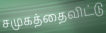
சமுகத்தைவிட்டு